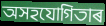
অসহযোগিতাৰ